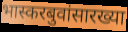
भास्करबुवांसारख्या